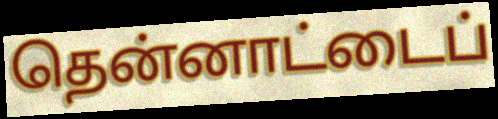
தென்னாட்டைப்